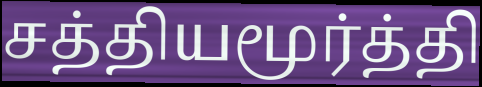
சத்தியமூர்த்தி